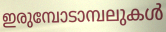
ഇരുമ്പോടാമ്പലുകൾ